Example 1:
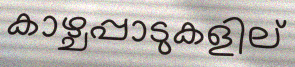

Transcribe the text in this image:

കാഴ്ചപ്പാടുകളില്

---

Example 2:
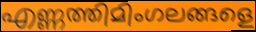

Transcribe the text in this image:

എണ്ണത്തിമിംഗലങ്ങളെ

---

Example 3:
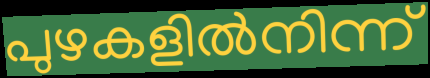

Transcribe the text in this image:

പുഴകളിൽനിന്ന്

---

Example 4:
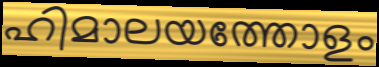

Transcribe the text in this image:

ഹിമാലയത്തോളം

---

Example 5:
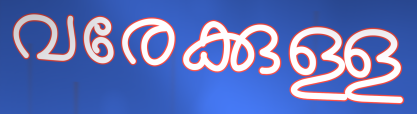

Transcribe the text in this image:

വരേക്കുള്ള